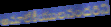
అమాలేకీయులనందరిని